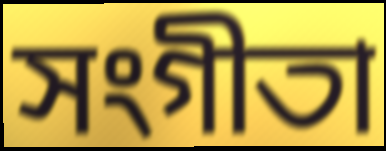
সংগীতা